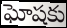
ఘోషకు